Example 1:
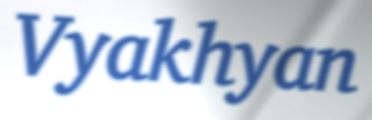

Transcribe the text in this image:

Vyakhyan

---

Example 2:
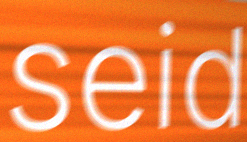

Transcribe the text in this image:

seid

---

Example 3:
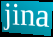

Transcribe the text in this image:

jina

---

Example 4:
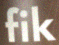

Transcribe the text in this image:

fik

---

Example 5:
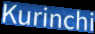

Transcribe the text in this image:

Kurinchi